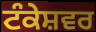
ਟੰਕੇਸ਼ਵਰ